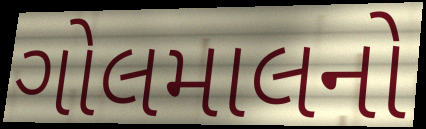
ગોલમાલનો